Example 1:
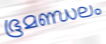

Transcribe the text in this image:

ഭൂമണ്ഡലം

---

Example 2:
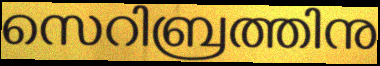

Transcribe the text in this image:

സെറിബ്രത്തിനു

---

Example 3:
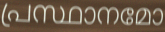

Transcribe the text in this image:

പ്രസ്ഥാനമോ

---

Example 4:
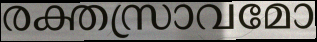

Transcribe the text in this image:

രക്തസ്രാവമോ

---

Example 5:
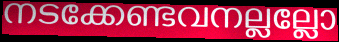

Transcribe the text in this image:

നടക്കേണ്ടവനല്ലല്ലോ